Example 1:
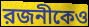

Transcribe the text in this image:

রজনীকেও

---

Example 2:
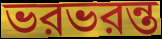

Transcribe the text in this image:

ভরভরন্ত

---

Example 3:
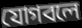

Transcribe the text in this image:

যোগবলে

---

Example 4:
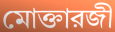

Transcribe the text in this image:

মোক্তারজী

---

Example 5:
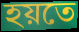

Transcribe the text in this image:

হয়তে